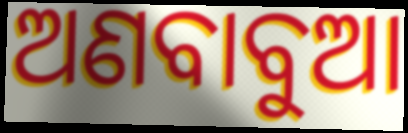
ଅଣବାବୁଆ